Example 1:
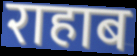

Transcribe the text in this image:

राहाब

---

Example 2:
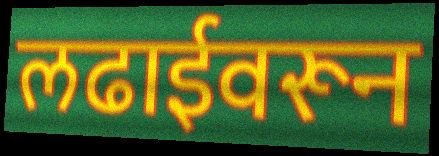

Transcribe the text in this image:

लढाईवरून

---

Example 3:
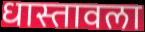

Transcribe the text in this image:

धास्तावला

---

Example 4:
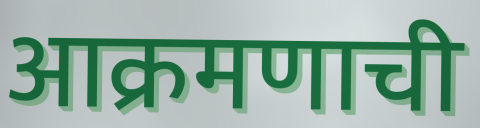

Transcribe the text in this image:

आक्रमणाची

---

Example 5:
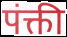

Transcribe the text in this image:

पंक्ती